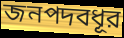
জনপদবধূর